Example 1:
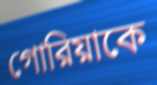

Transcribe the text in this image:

গোরিয়াকে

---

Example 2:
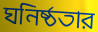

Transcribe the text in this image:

ঘনিষ্ঠতার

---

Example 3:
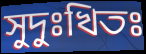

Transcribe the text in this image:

সুদুঃখিতঃ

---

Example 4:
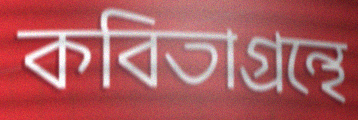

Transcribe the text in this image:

কবিতাগ্রন্থে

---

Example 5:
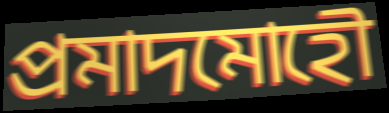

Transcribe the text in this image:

প্রমাদমোহৌ